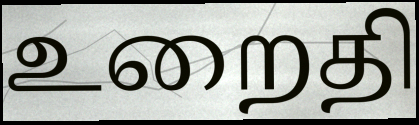
உறைதி